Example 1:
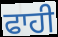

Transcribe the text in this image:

ਫਾਹੀ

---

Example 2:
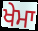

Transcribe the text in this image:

ਖੇਮਾ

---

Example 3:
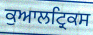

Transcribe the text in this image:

ਕੁਆਲਟ੍ਰਿਕਸ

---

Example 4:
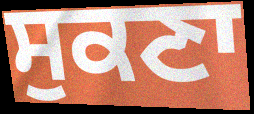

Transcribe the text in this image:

ਸੁਕਣਾ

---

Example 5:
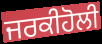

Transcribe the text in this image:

ਜਰਕੀਹੋਲੀ